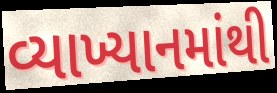
વ્યાખ્યાનમાંથી